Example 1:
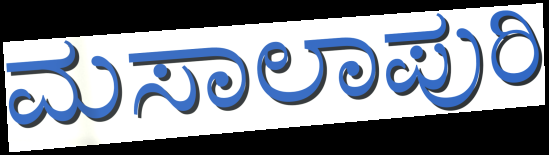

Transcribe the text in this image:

ಮಸಾಲಾಪುರಿ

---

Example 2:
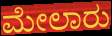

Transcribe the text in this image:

ಮೇಲಾರು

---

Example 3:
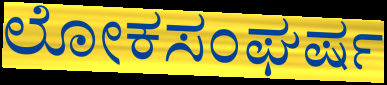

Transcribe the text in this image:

ಲೋಕಸಂಘರ್ಷ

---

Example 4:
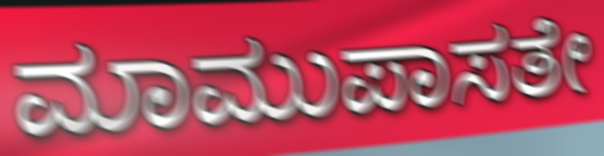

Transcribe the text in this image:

ಮಾಮುಪಾಸತೇ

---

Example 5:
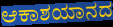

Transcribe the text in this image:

ಆಕಾಶಯಾನದ